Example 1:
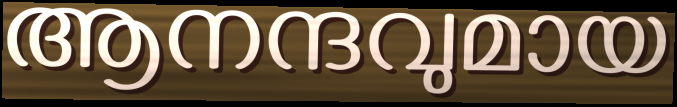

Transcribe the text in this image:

ആനന്ദവുമായ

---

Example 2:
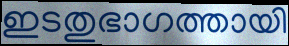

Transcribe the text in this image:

ഇടതുഭാഗത്തായി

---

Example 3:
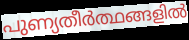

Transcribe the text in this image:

പുണ്യതീർത്ഥങ്ങളിൽ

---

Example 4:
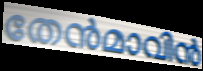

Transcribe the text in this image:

തേൻമാവിൻ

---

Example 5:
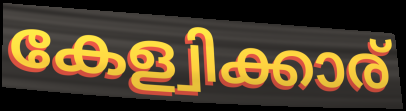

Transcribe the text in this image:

കേള്വിക്കാര്